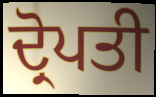
ਦ੍ਰੋਪਤੀ